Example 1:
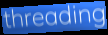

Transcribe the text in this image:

threading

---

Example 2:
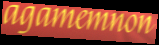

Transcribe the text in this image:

agamemnon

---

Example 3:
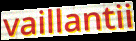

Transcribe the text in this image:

vaillantii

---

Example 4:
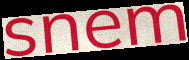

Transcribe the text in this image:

snem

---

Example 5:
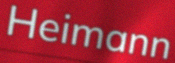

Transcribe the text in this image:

Heimann